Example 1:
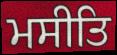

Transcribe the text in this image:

ਮਸੀਤਿ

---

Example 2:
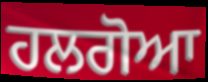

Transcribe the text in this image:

ਹਲਗੋਆ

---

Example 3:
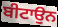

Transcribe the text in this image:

ਬੀਟਾਉਨ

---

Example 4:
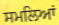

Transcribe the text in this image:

ਸਮਲਿਆਂ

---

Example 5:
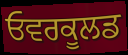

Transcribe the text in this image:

ਓਵਰਕੂਲਡ